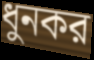
ধুনকর